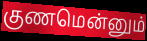
குணமென்னும்